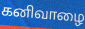
கனிவாழை